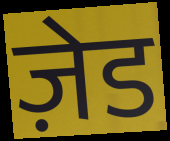
ज़ेड